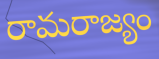
రామరాజ్యం